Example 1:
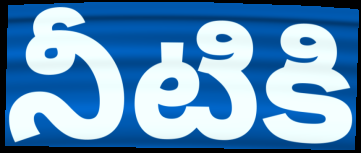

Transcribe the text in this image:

నీటికి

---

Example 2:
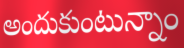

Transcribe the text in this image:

అందుకుంటున్నాం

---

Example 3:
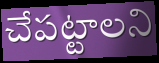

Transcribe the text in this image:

చేపట్టాలని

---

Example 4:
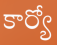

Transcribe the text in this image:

కార్యో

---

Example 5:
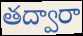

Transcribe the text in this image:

తద్వారా